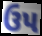
ઉપ